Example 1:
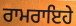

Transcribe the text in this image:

ਰਾਮਰਾਇਹੇ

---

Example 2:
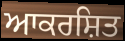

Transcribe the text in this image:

ਆਕਰਸ਼ਿਤ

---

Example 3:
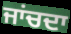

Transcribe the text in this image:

ਜਾਂਚਦਾ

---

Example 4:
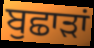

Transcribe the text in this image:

ਬੁਛਾੜਾਂ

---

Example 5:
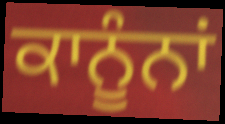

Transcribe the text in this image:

ਕਾਨੂੰਨਾਂ